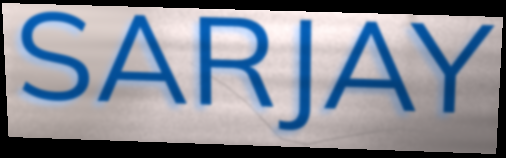
SARJAY